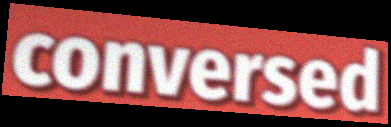
conversed